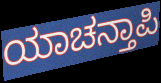
ಯಾಚನ್ತಾಪಿ